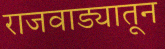
राजवाड्यातून